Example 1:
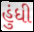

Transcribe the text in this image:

હુંધી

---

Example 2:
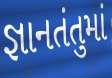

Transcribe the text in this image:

જ્ઞાનતંતુમાં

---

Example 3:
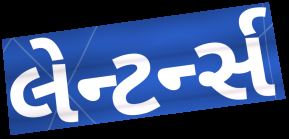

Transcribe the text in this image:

લેન્ટર્ન્સ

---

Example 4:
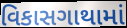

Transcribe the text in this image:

વિકાસગાથામાં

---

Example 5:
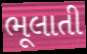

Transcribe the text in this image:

ભૂલાતી